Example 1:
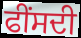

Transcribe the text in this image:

ਫੀਂਸਦੀ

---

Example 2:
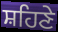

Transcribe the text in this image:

ਸ਼ਹਿਣੇ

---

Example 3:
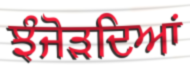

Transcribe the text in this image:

ਝੰਜੋੜਦਿਆਂ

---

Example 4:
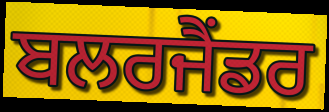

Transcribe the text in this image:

ਬਲਰਜੈਂਡਰ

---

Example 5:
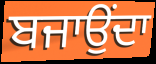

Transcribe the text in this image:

ਬਜਾਉਂਦਾ